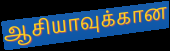
ஆசியாவுக்கான